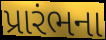
પ્રારંભના